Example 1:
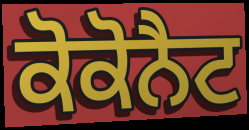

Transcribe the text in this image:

ਕੋਕੋਨੈਟ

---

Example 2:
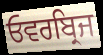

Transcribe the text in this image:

ਓਵਰਬ੍ਰਿਜ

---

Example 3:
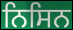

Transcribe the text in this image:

ਨਿਸਿਨ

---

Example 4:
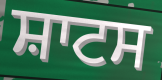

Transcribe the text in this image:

ਸ਼ਾਟਸ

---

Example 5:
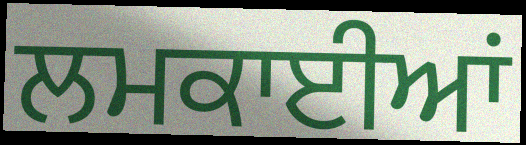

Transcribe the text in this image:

ਲਮਕਾਈਆਂ